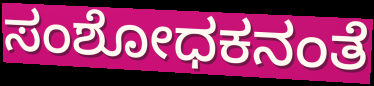
ಸಂಶೋಧಕನಂತೆ